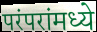
परंपरांमध्ये